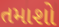
તમાશો